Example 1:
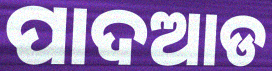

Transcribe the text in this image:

ପାଦଆଡ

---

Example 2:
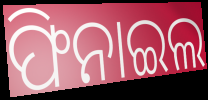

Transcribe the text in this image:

ଫିନାଇଲ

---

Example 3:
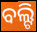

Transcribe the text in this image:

ବଲ୍ଟି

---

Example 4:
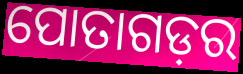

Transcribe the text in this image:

ପୋତାଗଡ଼ର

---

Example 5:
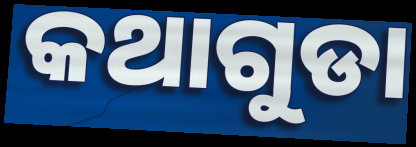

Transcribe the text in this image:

କଥାଗୁଡା